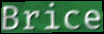
Brice